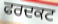
ਫਰਦਕਟ